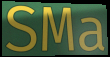
SMa